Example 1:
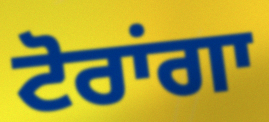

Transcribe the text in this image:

ਟੋਰਾਂਗਾ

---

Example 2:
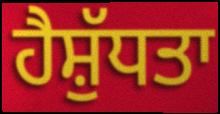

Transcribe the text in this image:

ਹੈਸ਼ੁੱਧਤਾ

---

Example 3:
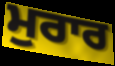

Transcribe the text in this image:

ਮੁਰਾਰ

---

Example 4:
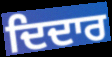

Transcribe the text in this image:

ਦਿਦਾਰ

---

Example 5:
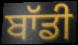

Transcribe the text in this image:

ਬਾੱਡੀ